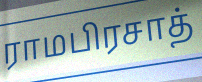
ராமபிரசாத்